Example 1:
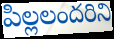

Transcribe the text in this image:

పిల్లలందరిని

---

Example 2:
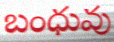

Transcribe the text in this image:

బంధువు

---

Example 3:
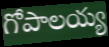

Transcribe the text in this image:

గోపాలయ్య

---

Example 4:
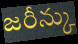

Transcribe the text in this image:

జరీన్కు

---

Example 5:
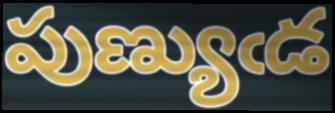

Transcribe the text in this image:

పుణ్యుఁడ